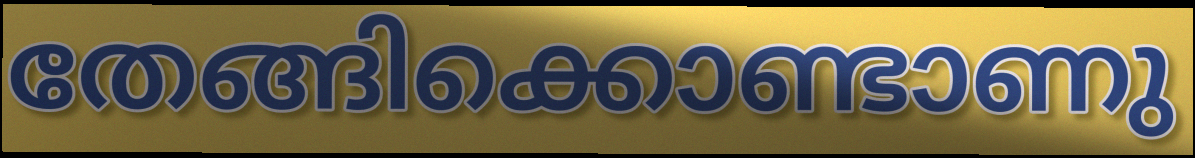
തേങ്ങിക്കൊണ്ടാണു